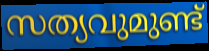
സത്യവുമുണ്ട്